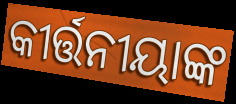
କୀର୍ତ୍ତନୀୟାଙ୍କ